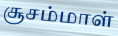
சூசம்மாள்